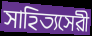
সাহিত্যসেৱী